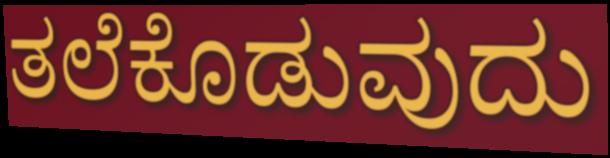
ತಲೆಕೊಡುವುದು